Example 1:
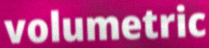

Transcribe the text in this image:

volumetric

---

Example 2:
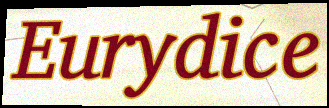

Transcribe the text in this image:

Eurydice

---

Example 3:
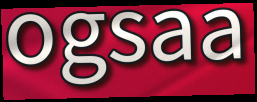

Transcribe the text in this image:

ogsaa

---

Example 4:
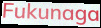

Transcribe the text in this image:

Fukunaga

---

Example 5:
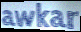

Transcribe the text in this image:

awkar